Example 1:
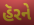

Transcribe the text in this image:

હૅરને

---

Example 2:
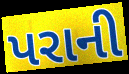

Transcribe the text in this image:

પરાની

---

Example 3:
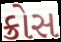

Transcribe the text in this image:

ક્રોસ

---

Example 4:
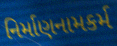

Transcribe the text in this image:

નિર્માણનામકર્મ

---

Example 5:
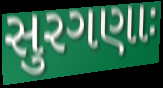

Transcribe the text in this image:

સુરગણાઃ